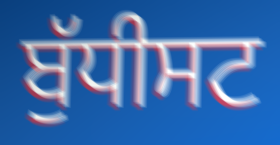
ਬੁੱਧੀਸਟ